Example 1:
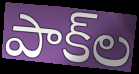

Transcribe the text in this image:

పాక్‌ల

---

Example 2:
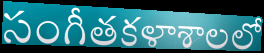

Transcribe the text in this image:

సంగీతకళాశాలలో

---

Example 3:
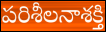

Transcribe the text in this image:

పరిశీలనాశక్తి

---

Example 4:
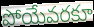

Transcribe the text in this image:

పోయేవరకూ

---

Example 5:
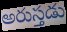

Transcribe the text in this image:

అరుస్తడు